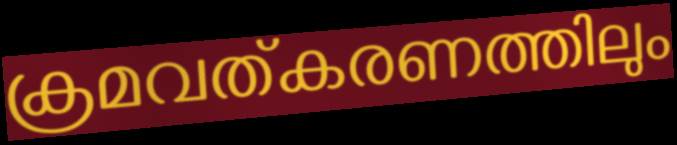
ക്രമവത്കരണത്തിലും